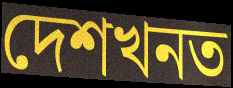
দেশখনত